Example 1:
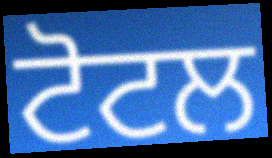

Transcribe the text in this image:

ਟੋਟਲ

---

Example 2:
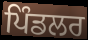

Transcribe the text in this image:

ਪਿੰਡਲਰ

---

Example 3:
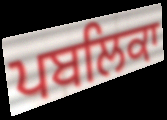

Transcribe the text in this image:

ਪਬਲਿਕਾ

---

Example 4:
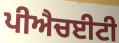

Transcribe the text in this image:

ਪੀਐਚਈਟੀ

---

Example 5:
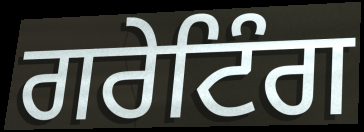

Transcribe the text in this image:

ਗਰੇਟਿੰਗ